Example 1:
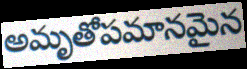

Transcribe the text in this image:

అమృతోపమానమైన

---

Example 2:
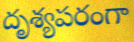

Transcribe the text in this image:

దృశ్యపరంగా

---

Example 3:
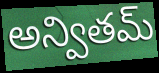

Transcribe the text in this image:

అన్వితమ్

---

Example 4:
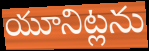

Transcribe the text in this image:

యూనిట్లను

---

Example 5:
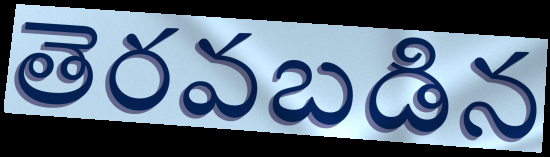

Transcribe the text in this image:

తెరవబడిన